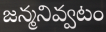
జన్మనివ్వటం